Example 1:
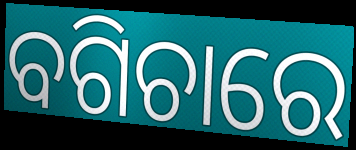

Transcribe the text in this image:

ବଗିଚାରେ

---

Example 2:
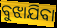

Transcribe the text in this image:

ବୁଝାଯିବା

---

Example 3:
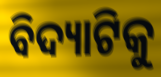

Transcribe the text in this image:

ବିଦ୍ୟାଟିକୁ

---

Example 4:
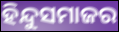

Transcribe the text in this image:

ହିନ୍ଦୁସମାଜର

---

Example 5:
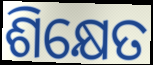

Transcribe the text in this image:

ଶିକ୍ଷେତ